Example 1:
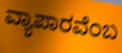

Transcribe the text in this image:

ವ್ಯಾಪಾರವೆಂಬ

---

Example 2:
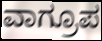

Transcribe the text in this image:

ವಾಗ್ರೂಪ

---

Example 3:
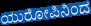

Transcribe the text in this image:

ಯುರೋಪಿನಿಂದ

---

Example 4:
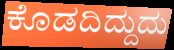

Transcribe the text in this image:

ಕೊಡದಿದ್ದುದು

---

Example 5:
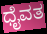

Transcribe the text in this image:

ಧೈವತ